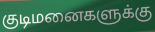
குடிமனைகளுக்கு